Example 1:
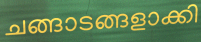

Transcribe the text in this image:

ചങ്ങാടങ്ങളാക്കി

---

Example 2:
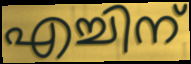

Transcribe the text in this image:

എച്ചിന്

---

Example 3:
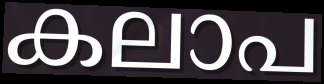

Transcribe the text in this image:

കലാപ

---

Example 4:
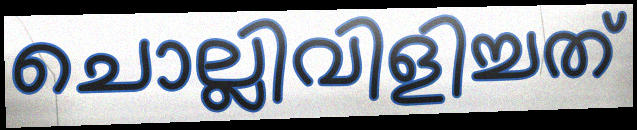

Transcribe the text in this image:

ചൊല്ലിവിളിച്ചത്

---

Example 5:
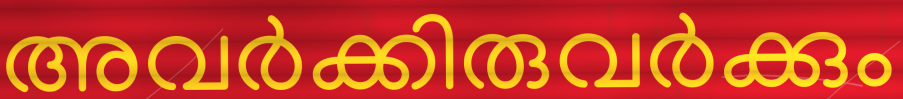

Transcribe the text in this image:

അവർക്കിരുവർക്കും